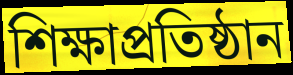
শিক্ষাপ্রতিষ্ঠান